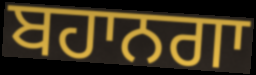
ਬਹਾਨਗਾ